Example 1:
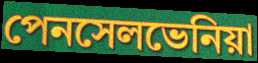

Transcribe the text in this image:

পেনসেলভেনিয়া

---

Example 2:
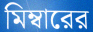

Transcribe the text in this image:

মিম্বারের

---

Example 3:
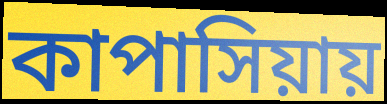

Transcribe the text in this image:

কাপাসিয়ায়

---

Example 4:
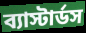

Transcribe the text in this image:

ব্যাস্টার্ডস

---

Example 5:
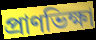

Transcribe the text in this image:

প্রাণভিক্ষা